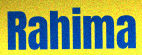
Rahima